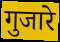
गुजारे